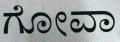
ಗೋವಾ